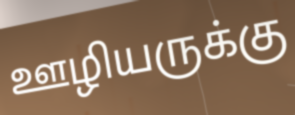
ஊழியருக்கு